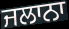
ਜਲਾਨਾ